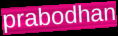
prabodhan